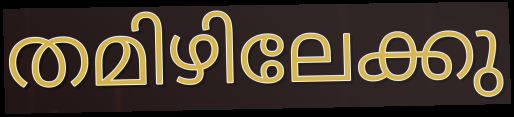
തമിഴിലേക്കു